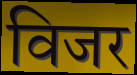
विजर